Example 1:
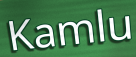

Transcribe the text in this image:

Kamlu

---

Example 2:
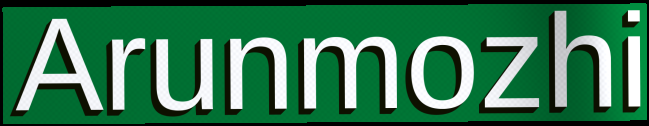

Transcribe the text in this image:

Arunmozhi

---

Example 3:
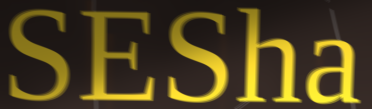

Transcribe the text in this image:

SESha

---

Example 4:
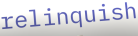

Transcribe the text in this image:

relinquish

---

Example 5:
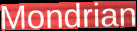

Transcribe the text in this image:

Mondrian